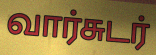
வார்சுடர்